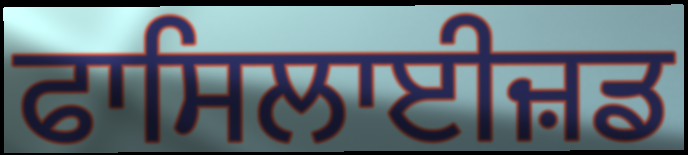
ਫਾਸਿਲਾਈਜ਼ਡ